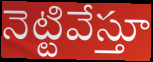
నెట్టివేస్తూ